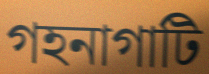
গহনাগাটি